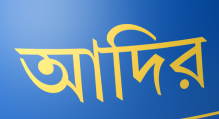
আদির